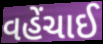
વહેંચાઈ